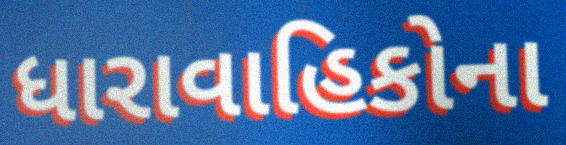
ધારાવાહિકોના